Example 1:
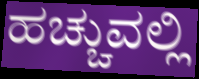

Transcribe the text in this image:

ಹಚ್ಚುವಲ್ಲಿ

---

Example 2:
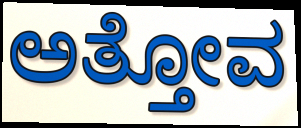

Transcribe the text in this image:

ಅತ್ತೋವ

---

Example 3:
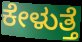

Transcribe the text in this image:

ಕೇಳುತ್ತೆ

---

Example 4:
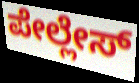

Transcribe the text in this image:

ಪೇಲ್ಲೇಸ್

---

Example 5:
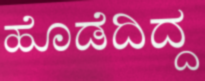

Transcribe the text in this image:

ಹೊಡೆದಿದ್ದ